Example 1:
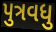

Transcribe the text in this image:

પુત્રવધુ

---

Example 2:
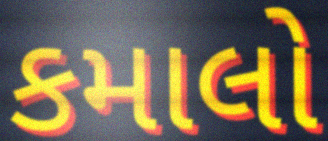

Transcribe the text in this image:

કમાલો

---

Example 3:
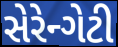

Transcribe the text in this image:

સેરેન્ગેટી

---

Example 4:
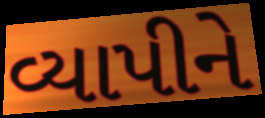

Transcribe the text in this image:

વ્યાપીને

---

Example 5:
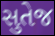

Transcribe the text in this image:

સુતેજ